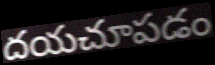
దయచూపడం